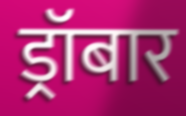
ड्रॉबार